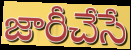
జారీచేసే